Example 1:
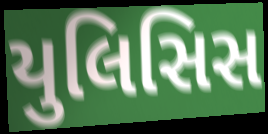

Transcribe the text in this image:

યુલિસિસ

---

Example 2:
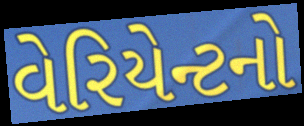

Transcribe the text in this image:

વેરિયેન્ટનો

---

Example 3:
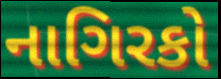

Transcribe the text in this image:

નાગિરકો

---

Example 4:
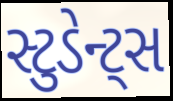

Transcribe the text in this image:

સ્ટુડેન્ટ્સ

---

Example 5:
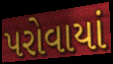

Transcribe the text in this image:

પરોવાયાં